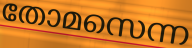
തോമസെന്ന